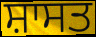
ਸ਼ਾਸਤ